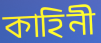
কাহিনী